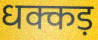
धक्कड़